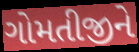
ગોમતીજીને